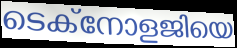
ടെക്‌നോളജിയെ